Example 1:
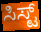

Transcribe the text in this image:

ಸಿಸ್ಟ್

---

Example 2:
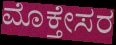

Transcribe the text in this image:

ಮೊಕ್ತೇಸರ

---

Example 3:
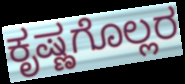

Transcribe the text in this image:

ಕೃಷ್ಣಗೊಲ್ಲರ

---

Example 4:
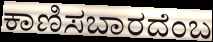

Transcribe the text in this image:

ಕಾಣಿಸಬಾರದೆಂಬ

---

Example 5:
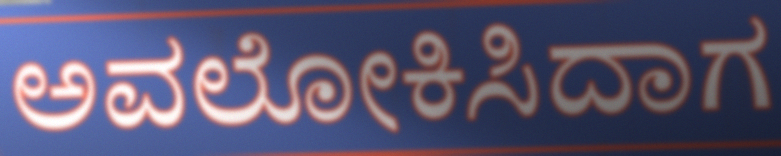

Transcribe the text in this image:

ಅವಲೋಕಿಸಿದಾಗ